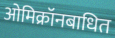
ओमिक्रॉनबाधित